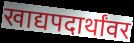
खाद्यपदार्थांवर